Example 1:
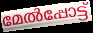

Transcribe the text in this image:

മേൽപ്പോട്ട്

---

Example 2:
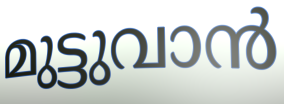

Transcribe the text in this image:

മുട്ടുവാൻ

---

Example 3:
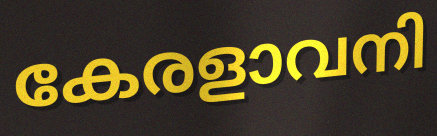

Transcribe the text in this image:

കേരളാവനി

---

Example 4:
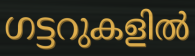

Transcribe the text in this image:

ഗട്ടറുകളിൽ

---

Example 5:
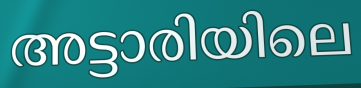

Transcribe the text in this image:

അട്ടാരിയിലെ